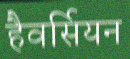
हैवर्सियन